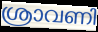
ശ്രാവണി